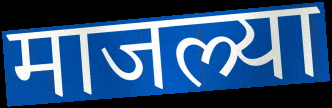
माजल्या